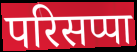
परिसप्पा